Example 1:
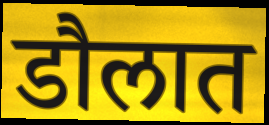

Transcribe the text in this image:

डौलात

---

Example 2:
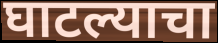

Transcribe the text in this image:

घाटल्याचा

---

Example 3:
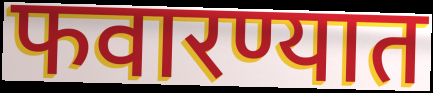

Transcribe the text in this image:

फवारण्यात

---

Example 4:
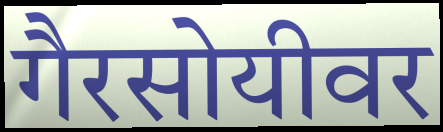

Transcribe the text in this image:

गैरसोयीवर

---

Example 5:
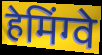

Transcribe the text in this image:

हेमिंग्वे